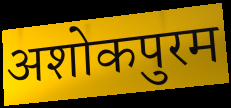
अशोकपुरम